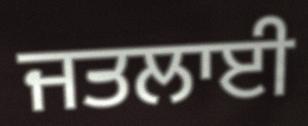
ਜਤਲਾਈ